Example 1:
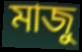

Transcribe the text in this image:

মাজু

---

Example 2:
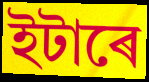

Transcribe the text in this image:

ইটাৰে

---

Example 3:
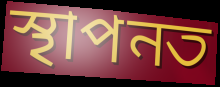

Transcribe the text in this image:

স্থাপনত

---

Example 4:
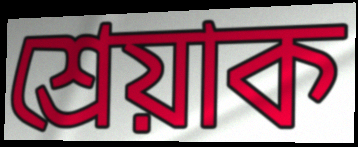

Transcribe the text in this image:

শ্ৰেয়াক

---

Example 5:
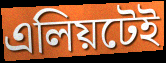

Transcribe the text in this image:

এলিয়টেই